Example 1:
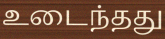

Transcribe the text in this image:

உடைந்தது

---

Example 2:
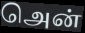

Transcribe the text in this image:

அென்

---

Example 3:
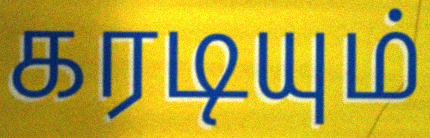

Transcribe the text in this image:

கரடியும்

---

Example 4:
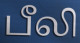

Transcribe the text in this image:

பீலி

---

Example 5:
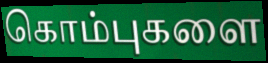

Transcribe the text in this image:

கொம்புகளை